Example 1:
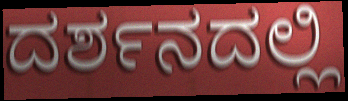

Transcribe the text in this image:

ದರ್ಶನದಲ್ಲಿ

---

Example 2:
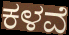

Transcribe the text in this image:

ಕಳವೆ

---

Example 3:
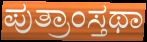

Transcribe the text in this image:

ಪುತ್ರಾಂಸ್ತಥಾ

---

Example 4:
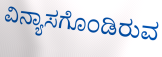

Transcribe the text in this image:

ವಿನ್ಯಾಸಗೊಂಡಿರುವ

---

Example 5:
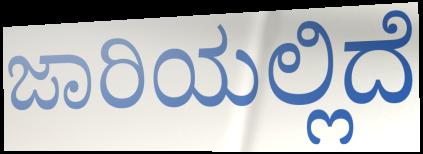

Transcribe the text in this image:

ಜಾರಿಯಲ್ಲಿದೆ